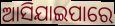
ଆସିଯାଇପାରେ